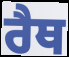
ਰੈਥ